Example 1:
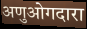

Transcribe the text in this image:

अणुओगदारा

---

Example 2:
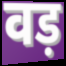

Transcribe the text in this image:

वड़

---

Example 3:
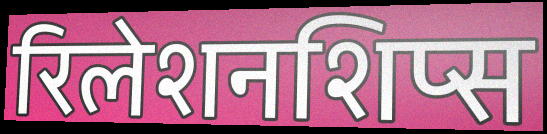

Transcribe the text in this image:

रिलेशनशिप्स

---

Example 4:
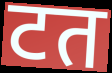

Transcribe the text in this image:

टत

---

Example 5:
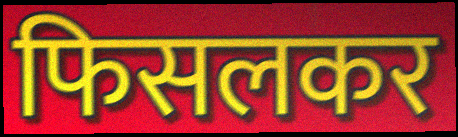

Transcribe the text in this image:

फिसलकर